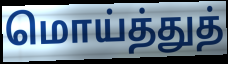
மொய்த்துத்